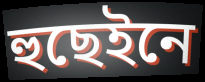
হুছেইনে